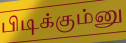
பிடிக்கும்னு